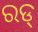
ରଡ୍